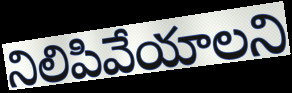
నిలిపివేయాలని